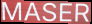
MASER